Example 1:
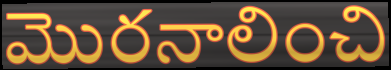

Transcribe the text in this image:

మొరనాలించి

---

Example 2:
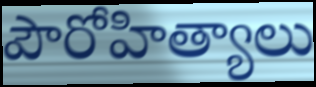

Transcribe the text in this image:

పౌరోహిత్యాలు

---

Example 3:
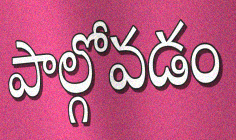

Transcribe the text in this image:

పాల్గోవడం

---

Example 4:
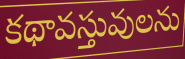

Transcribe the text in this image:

కథావస్తువులను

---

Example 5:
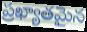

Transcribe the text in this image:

ప్రఖ్యాతమైన